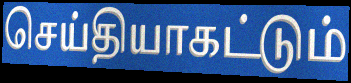
செய்தியாகட்டும்